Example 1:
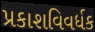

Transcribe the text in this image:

પ્રકાશવિવર્ધક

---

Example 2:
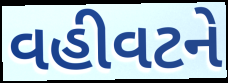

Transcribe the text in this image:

વહીવટને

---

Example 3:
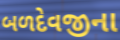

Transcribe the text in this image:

બળદેવજીના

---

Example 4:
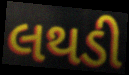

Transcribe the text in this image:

લથડી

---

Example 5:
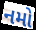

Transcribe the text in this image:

નમો